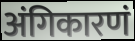
अंगिकारणं